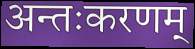
अन्तःकरणम्